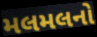
મલમલનો